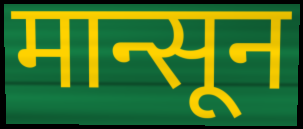
मान्सून